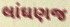
લાંઘણજ